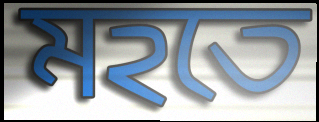
মহতে